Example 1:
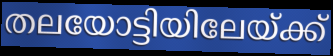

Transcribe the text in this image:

തലയോട്ടിയിലേയ്ക്ക്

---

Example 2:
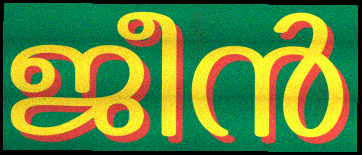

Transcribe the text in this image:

ജീൻ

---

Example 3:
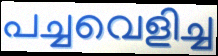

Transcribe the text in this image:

പച്ചവെളിച്ച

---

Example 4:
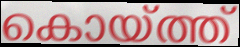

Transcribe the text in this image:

കൊയ്ത്ത്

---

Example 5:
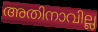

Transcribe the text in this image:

അതിനാവില്ല